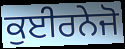
ਕੁਈਰਨੇਜੋ